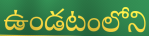
ఉండటంలోని